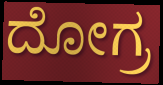
ದೋಗ್ರ